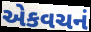
એકવચનં